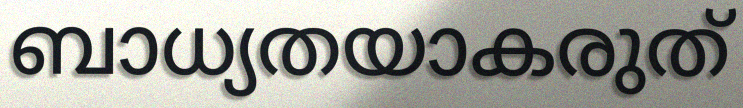
ബാധ്യതയാകരുത്